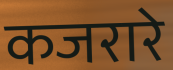
कजरारे